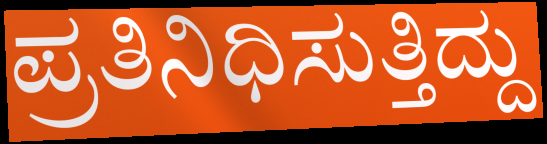
ಪ್ರತಿನಿಧಿಸುತ್ತಿದ್ದು